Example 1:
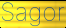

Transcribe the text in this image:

Sagor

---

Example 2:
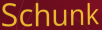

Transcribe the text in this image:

Schunk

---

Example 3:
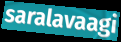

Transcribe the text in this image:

saralavaagi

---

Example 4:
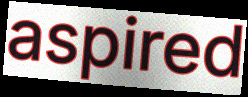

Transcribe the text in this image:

aspired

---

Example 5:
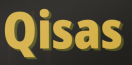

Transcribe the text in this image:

Qisas